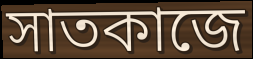
সাতকাজে